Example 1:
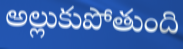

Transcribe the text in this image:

అల్లుకుపోతుంది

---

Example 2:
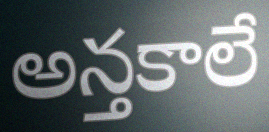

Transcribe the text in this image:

అన్తకాలే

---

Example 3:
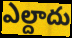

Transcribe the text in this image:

ఎల్దాదు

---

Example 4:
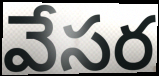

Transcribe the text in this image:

వేసర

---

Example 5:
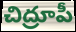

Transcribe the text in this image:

చిద్రూపీ